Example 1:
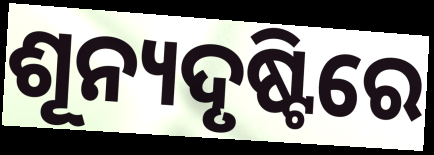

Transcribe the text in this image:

ଶୂନ୍ୟଦୃଷ୍ଟିରେ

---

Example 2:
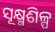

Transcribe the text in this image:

ସୂକ୍ଷ୍ମଶିଳ୍ପ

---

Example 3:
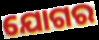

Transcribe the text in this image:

ଯୋଗର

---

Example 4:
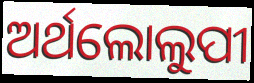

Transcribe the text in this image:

ଅର୍ଥଲୋଲୁପୀ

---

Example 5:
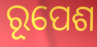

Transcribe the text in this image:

ରୂପେଶ